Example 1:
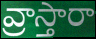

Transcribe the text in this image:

వ్రాస్తారా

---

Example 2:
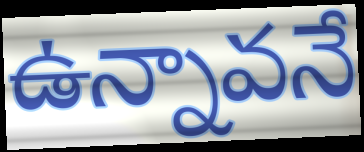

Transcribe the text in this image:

ఉన్నావనే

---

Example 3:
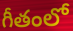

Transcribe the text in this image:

గీతంలో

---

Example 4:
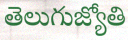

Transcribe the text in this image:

తెలుగుజ్యోతి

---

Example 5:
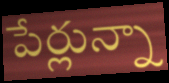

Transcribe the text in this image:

పేర్లున్నా